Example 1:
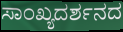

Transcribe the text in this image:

ಸಾಂಖ್ಯದರ್ಶನದ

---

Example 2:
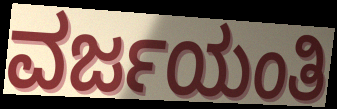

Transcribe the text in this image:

ವರ್ಜಯಂತಿ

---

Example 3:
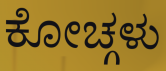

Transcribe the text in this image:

ಕೋಚ್ಗಳು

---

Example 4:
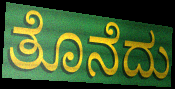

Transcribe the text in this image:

ತೊನೆದು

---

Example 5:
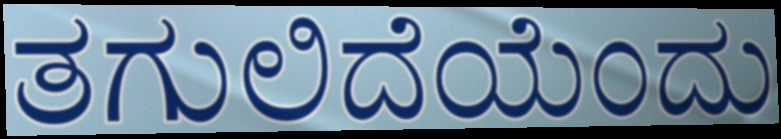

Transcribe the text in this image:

ತಗುಲಿದೆಯೆಂದು